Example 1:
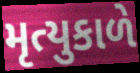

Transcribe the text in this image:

મૃત્યુકાળે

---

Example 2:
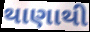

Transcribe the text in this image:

થાણાથી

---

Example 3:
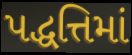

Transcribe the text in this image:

પદ્ધત્તિમાં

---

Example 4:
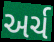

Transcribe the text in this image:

અર્ચ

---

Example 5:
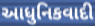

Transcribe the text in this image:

આધુનિકવાદી